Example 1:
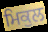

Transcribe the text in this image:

ਮਿਕੁਲ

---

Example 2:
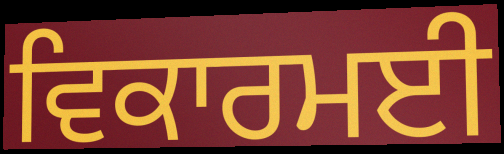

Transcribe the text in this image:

ਵਿਕਾਰਮਈ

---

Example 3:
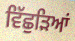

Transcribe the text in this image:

ਵਿੱਛੁੜਿਆਂ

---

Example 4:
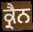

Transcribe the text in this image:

ਕ੍ਰੈਨ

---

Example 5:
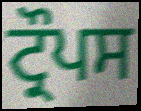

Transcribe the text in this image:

ਟ੍ਰੌਪਸ